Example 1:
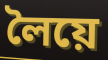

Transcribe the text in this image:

লৈয়ে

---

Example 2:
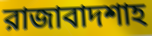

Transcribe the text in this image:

রাজাবাদশাহ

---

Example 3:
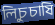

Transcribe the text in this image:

লিচুচাষি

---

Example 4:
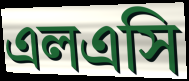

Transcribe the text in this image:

এলএসি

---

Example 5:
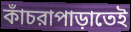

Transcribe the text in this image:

কাঁচরাপাড়াতেই